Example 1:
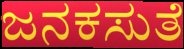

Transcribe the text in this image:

ಜನಕಸುತೆ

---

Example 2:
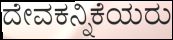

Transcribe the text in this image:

ದೇವಕನ್ನಿಕೆಯರು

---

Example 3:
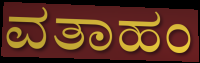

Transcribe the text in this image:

ವತಾಹಂ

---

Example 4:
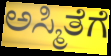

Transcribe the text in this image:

ಅಸ್ಮಿತೆಗೆ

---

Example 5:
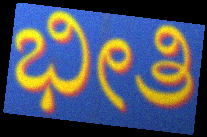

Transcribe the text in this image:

ಭೀತಿ